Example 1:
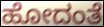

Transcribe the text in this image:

ಹೋದಂತೆ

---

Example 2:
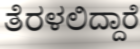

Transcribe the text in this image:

ತೆರಳಲಿದ್ದಾರೆ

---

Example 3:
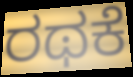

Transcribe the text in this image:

ರಥಕೆ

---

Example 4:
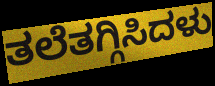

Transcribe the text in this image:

ತಲೆತಗ್ಗಿಸಿದಳು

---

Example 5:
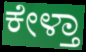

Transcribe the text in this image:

ಕೇಳ್ತಾ